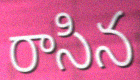
రాసిన